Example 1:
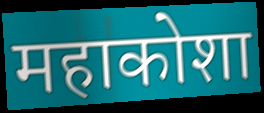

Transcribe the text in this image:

महाकोशा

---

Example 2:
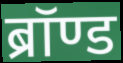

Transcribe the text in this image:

ब्रॉण्ड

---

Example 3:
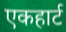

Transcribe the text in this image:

एकहार्ट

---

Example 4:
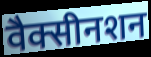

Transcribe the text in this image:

वैक्सीनशन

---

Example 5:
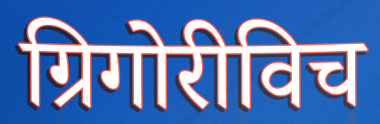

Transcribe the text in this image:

ग्रिगोरीविच